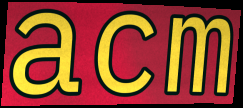
acm